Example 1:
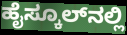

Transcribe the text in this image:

ಹೈಸ್ಕೂಲ್‍ನಲ್ಲಿ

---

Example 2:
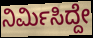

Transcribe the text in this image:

ನಿರ್ಮಿಸಿದ್ದೇ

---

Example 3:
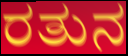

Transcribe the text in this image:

ರತುನ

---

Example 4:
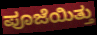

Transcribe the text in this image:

ಪೂಜೆಯಿತ್ತು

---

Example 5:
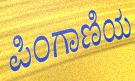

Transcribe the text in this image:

ಪಿಂಗಾಣಿಯ